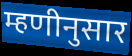
म्हणीनुसार